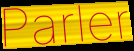
Parler